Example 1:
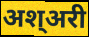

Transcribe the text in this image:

अश्अरी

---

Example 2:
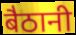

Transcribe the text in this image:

बैठानी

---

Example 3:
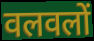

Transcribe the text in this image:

वलवलों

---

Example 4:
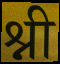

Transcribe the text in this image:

श्नी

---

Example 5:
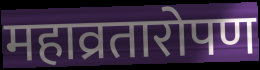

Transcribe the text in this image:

महाव्रतारोपण